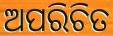
ଅପରିଚିତ